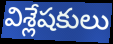
విశ్లేషకులు